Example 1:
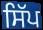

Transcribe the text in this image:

ਸਿੱਪ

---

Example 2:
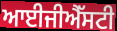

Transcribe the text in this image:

ਆਈਜੀਐੱਸਟੀ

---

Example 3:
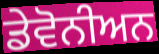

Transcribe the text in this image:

ਡੇਵੋਨੀਅਨ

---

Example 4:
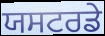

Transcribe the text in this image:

ਯਸਟਰਡੇ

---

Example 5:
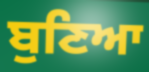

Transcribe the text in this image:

ਬੁਣਿਆ